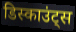
डिस्काउंट्स